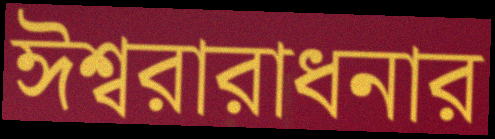
ঈশ্বরারাধনার